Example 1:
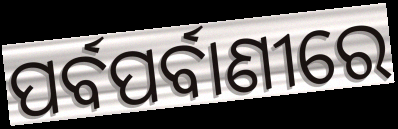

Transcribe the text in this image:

ପର୍ବପର୍ବାଣୀରେ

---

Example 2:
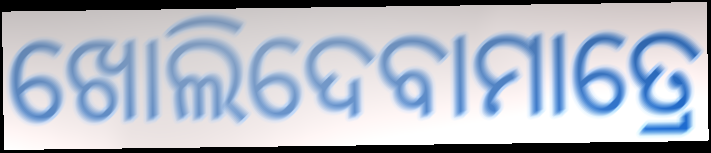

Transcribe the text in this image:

ଖୋଲିଦେବାମାତ୍ରେ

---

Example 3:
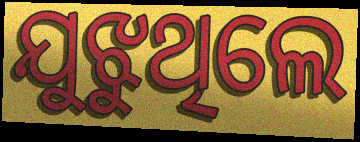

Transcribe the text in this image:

ଯୁଝୁଥିଲେ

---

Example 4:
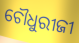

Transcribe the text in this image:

ଚୌଧୁରୀଜୀ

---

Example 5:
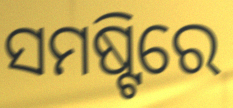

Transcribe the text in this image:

ସମଷ୍ଟିରେ